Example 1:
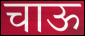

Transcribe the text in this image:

चाऊ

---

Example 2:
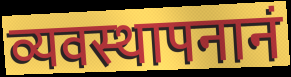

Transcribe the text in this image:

व्यवस्थापनानं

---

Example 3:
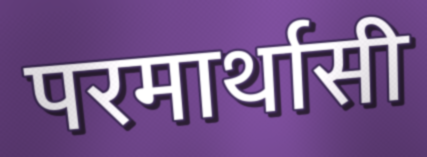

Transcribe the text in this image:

परमार्थासी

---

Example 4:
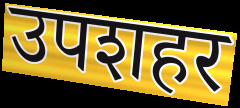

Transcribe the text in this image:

उपशहर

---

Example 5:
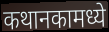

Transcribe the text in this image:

कथानकामध्ये